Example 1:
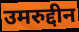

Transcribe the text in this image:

उमरुद्दीन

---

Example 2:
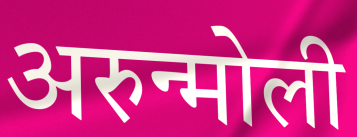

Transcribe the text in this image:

अरुन्मोली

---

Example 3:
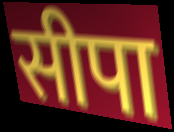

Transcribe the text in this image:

सीपा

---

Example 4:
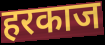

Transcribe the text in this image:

हरकाज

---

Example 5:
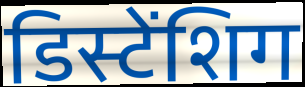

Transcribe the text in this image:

डिस्टेंशिग